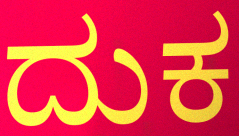
ದುಕ